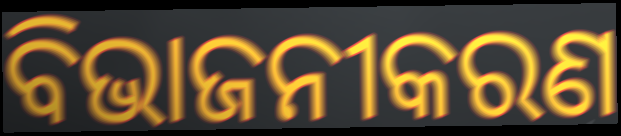
ବିଭାଜନୀକରଣ